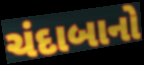
ચંદાબાનો